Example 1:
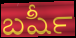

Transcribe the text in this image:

బషీర్‍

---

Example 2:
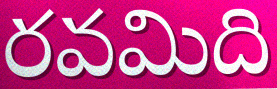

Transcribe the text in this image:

రవమిది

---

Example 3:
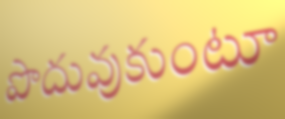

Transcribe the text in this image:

పొదువుకుంటూ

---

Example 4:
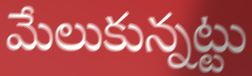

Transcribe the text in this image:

మేలుకున్నట్టు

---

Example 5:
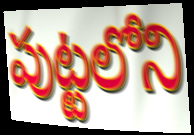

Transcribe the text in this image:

పుట్టలోని